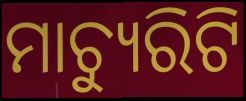
ମାଚ୍ୟୁରିଟି